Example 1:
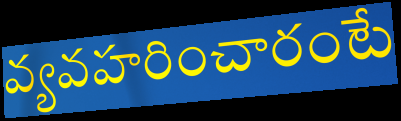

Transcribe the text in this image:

వ్యవహరించారంటే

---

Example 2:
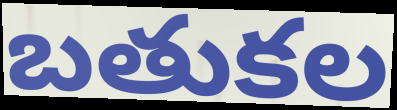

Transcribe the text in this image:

బతుకల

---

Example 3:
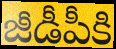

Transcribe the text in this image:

జీడీపీకి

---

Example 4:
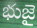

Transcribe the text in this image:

భుజై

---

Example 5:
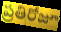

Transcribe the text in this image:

ప్రతిరోజూ